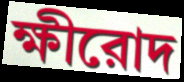
ক্ষীরোদ